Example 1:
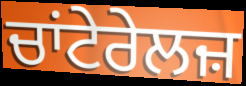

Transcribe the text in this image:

ਚਾਂਟੇਰੇਲਜ਼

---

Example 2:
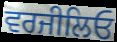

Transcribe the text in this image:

ਵਰਜੀਲਿਓ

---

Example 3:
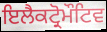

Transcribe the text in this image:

ਇਲੈਕਟ੍ਰੋਮੌਟਿਵ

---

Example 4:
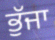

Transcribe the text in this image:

ਭੁੱਜਾ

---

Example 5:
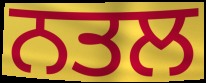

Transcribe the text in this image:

ਨਤਲ